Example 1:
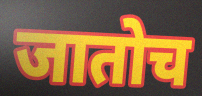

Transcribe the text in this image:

जातोच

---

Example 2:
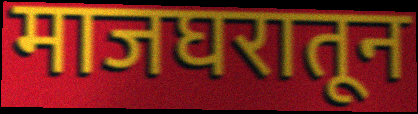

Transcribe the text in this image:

माजघरातून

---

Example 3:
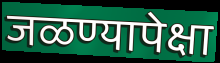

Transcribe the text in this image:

जळण्यापेक्षा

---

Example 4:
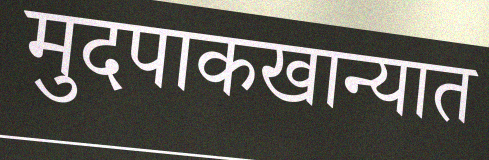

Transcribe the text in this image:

मुदपाकखान्यात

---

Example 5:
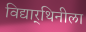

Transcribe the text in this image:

विद्यार्थिनीला